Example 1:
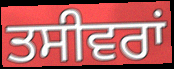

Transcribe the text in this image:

ਤਸੀਵਰਾਂ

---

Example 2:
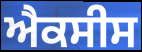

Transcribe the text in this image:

ਐਕਸੀਸ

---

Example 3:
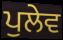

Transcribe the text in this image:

ਪੁਲੇਵ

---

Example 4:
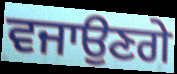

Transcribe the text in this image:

ਵਜਾਉਣਗੇ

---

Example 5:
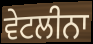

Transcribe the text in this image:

ਵੇਟਲੀਨਾ